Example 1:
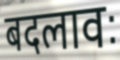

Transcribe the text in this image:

बदलावः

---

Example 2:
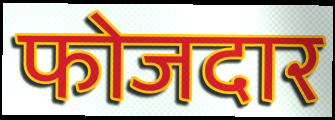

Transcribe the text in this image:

फोजदार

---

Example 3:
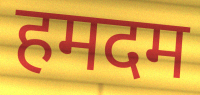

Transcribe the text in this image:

हमदम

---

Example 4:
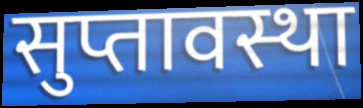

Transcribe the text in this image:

सुप्तावस्था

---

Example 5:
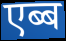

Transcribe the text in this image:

एब्ब